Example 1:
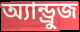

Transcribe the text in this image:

অ্যান্ড্রুজ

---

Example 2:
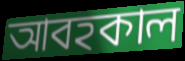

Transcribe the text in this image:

আবহকাল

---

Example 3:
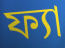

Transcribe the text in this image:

ফ্যা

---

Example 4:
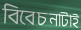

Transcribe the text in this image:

বিবেচনাটাই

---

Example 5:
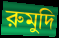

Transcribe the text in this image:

রুমুদি